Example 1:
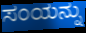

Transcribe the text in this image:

ಸಂಯನ್ನು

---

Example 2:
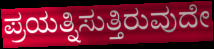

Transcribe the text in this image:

ಪ್ರಯತ್ನಿಸುತ್ತಿರುವುದೇ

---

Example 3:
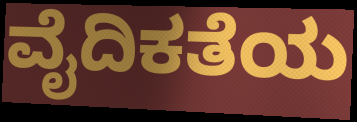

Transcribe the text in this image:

ವೈದಿಕತೆಯ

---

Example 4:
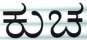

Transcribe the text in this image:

ಕುಚ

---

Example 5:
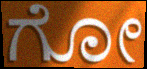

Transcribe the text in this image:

ಗೋ